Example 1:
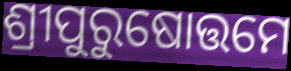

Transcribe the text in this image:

ଶ୍ରୀପୁରୁଷୋତ୍ତମେ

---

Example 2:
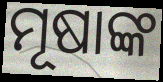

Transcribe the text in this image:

ମୂଷାଙ୍କ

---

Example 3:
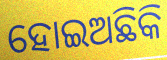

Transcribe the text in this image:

ହୋଇଅଛିକି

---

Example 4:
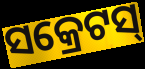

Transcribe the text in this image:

ସକ୍ରେଟସ୍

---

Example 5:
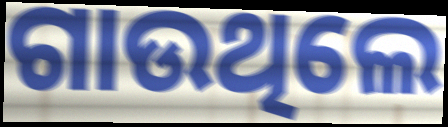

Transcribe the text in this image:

ଗାଉଥିଲେ